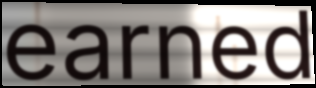
earned